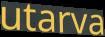
utarva